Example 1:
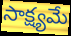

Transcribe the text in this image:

సాక్ష్యమే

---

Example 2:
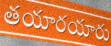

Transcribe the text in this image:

తయారయారు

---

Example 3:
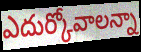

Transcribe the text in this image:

ఎదుర్కోవాలన్నా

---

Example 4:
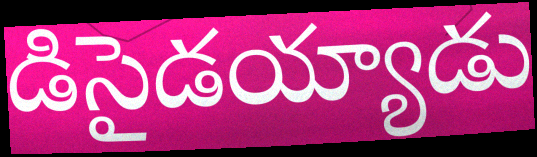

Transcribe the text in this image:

డిసైడయ్యాడు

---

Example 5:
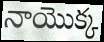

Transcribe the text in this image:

నాయొక్క